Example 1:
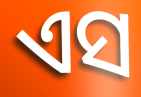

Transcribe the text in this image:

ଏସ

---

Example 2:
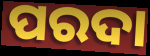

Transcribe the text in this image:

ପରଦା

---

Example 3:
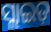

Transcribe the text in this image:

ସ୍ଲାଇଡ଼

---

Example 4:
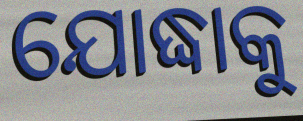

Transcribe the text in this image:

ଯୋଦ୍ଧାକୁ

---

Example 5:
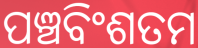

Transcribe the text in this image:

ପଞ୍ଚବିଂଶତମ